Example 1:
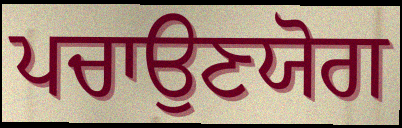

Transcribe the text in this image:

ਪਚਾਉਣਯੋਗ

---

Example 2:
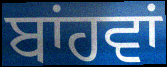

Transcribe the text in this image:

ਬਾਂਹਵਾਂ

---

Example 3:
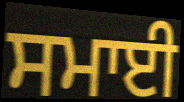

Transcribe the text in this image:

ਸਮਾਈ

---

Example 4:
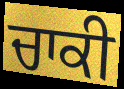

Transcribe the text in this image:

ਚਾਕੀ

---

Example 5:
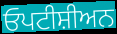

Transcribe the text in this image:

ਓਪਟੀਸ਼ੀਅਨ